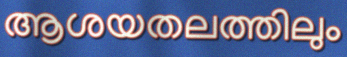
ആശയതലത്തിലും